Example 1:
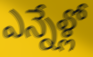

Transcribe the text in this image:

ఎన్నేళ్లో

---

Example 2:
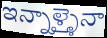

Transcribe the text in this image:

ఇన్నాళ్ళైనా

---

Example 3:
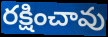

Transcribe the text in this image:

రక్షించావు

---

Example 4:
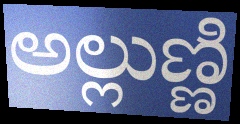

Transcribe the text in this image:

అల్లుణ్ణి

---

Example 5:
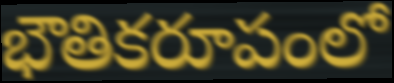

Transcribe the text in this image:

భౌతికరూపంలో